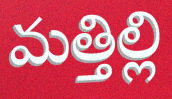
మత్తిల్లి